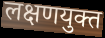
लक्षणयुक्त